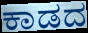
ಕಾಡದ